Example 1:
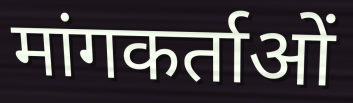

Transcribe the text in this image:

मांगकर्ताओं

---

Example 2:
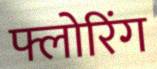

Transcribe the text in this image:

फ्लोरिंग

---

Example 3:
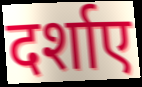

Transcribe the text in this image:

दर्शाए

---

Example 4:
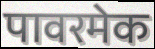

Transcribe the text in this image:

पावरमेक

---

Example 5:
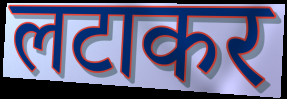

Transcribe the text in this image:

लटाकर